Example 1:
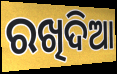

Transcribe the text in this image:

ରଖିଦିଆ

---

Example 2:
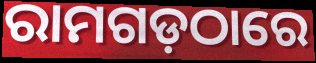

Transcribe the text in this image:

ରାମଗଡ଼ଠାରେ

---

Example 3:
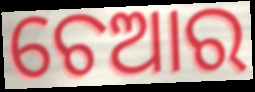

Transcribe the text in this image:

ଚେଆର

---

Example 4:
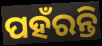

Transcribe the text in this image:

ପହଁରନ୍ତି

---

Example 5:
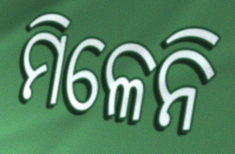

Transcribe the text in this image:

ମିଳେନି